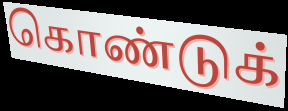
கொண்டுக்